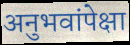
अनुभवांपेक्षा